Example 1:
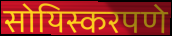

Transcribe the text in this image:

सोयिस्करपणे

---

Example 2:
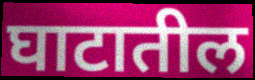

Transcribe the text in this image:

घाटातील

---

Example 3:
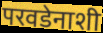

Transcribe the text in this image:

परवडेनाशी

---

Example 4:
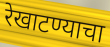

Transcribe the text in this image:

रेखाटण्याचा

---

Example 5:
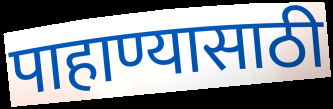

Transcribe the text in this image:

पाहाण्यासाठी